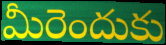
మీరెందుకు